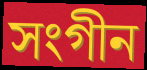
সংগীন